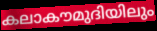
കലാകൗമുദിയിലും